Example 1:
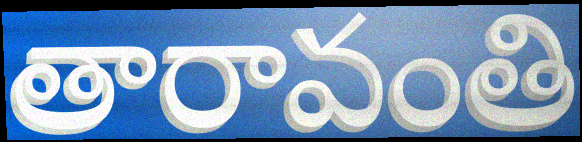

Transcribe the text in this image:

తారావంతి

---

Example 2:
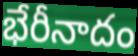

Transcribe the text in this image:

భేరీనాదం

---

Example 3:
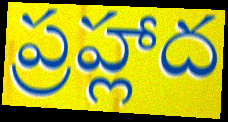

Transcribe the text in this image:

ప్రహ్లాద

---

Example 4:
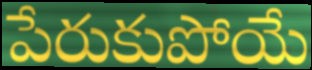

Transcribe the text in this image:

పేరుకుపోయే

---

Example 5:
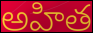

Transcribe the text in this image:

అహిత